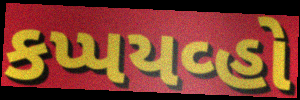
કપ્પયવ્હો